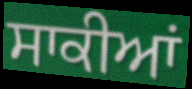
ਸਾਕੀਆਂ